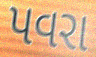
પવરા